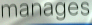
manages